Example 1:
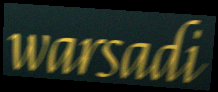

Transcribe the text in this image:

warsadi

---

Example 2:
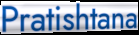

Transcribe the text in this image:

Pratishtana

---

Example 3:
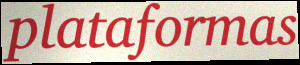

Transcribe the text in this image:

plataformas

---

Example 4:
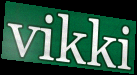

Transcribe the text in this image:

vikki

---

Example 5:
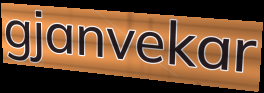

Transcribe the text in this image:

gjanvekar